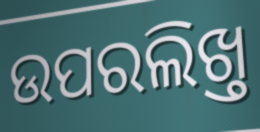
ଉପରଲିଖ୍ତ